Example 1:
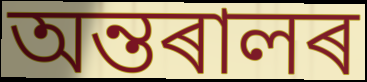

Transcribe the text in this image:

অন্তৰালৰ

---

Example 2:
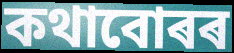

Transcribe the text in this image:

কথাবোৰৰ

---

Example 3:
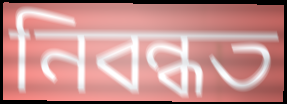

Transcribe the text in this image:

নিবন্ধত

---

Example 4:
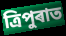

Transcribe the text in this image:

ত্ৰিপুৰাত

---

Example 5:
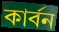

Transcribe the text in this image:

কাৰ্বন